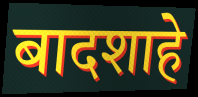
बादशाहे